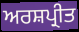
ਅਰਸ਼ਪ੍ਰੀਤ